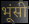
भूंसी